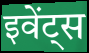
इवेंट्स